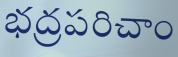
భద్రపరిచాం